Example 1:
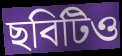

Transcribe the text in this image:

ছবিটিও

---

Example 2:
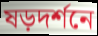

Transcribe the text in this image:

ষড়দর্শনে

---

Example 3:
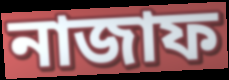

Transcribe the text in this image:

নাজাফ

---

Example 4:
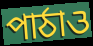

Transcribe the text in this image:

পাঠাও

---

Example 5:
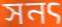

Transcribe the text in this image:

সনৎ